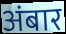
अंबार